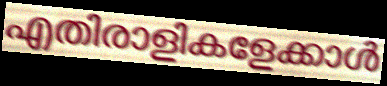
എതിരാളികളേക്കാൾ